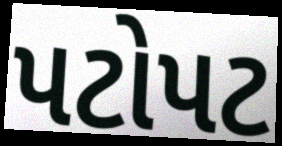
પટોપટ